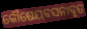
କୌଷେୟବସନାବୃତ